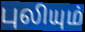
புலியும்